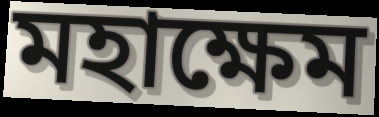
মহাক্ষেম